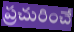
ప్రచురించే